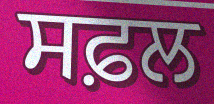
ਸਫ਼ਲ